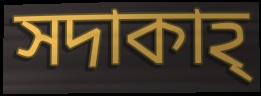
সদাকাহ্